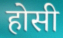
होसी